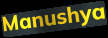
Manushya